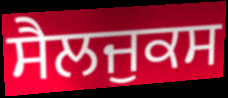
ਸੈਲਜੁਕਸ